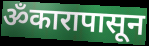
ॐकारापासून